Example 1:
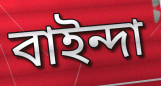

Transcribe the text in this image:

বাইন্দা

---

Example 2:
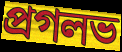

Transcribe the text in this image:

প্রগলভ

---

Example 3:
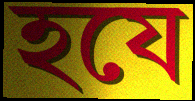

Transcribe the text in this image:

হযে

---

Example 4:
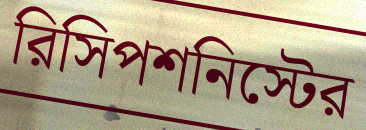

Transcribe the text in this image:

রিসিপশনিস্টের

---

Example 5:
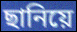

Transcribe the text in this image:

ছানিয়ে